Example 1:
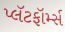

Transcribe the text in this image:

પ્લૅટફૉર્મ્સ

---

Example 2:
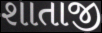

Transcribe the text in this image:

શાતાજી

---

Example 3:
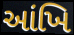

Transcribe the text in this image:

આંખિ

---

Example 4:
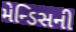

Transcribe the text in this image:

મેન્ડિસની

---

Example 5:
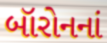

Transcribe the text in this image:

બૉરોનનાં